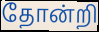
தோன்றி